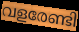
വളരേണ്ടി